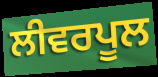
ਲੀਵਰਪੂਲ